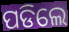
ପଡିଲେ